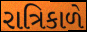
રાત્રિકાળે